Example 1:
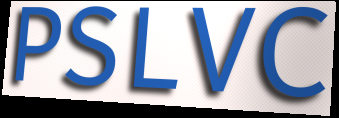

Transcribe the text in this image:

PSLVC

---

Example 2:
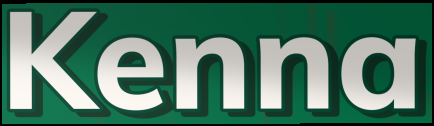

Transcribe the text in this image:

Kenna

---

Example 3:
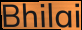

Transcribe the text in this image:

Bhilai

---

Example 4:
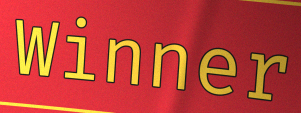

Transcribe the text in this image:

Winner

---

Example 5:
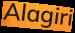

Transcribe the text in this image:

Alagiri